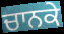
ਚਾਨਕੇ